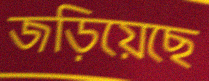
জড়িয়েছে